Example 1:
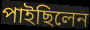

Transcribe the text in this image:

পাইছিলেন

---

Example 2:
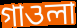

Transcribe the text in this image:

গাওলা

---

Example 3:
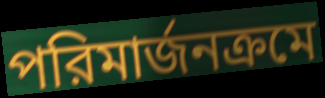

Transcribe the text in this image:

পরিমার্জনক্রমে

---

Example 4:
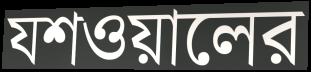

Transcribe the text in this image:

যশওয়ালের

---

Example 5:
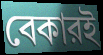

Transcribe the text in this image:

বেকারই